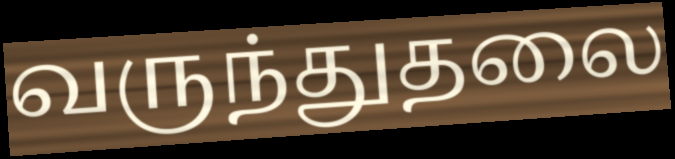
வருந்துதலை